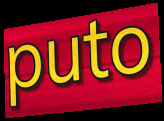
puto